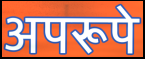
अपरूपे